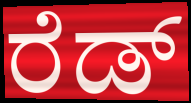
ರೆಡ್